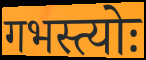
गभस्त्योः